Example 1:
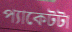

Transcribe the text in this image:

প্যাকেটটা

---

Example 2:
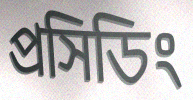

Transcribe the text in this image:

প্রসিডিং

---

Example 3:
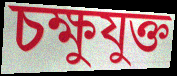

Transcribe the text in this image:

চক্ষুযুক্ত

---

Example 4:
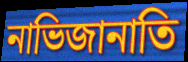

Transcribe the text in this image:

নাভিজানাতি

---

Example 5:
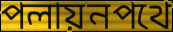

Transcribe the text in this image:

পলায়নপথে